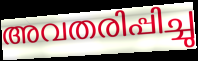
അവതരിപ്പിച്ചു